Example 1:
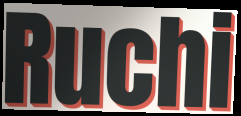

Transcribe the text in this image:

Ruchi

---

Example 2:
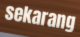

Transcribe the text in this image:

sekarang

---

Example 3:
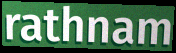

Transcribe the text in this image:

rathnam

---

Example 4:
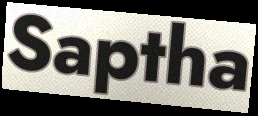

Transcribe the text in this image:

Saptha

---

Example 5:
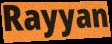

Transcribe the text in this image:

Rayyan